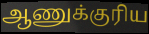
ஆணுக்குரிய